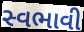
સ્વભાવી